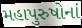
મહાપુરુષોનાં